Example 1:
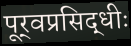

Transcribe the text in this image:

पूर्वप्रसिद्धीः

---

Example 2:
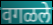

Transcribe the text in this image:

वगळले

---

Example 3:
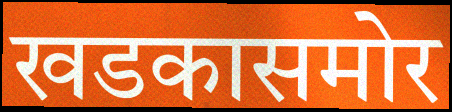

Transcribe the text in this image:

खडकासमोर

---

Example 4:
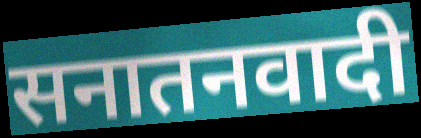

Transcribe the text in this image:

सनातनवादी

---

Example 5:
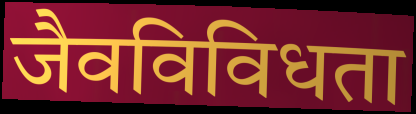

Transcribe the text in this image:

जैवविविधता